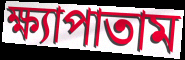
ক্ষ্যাপাতাম